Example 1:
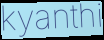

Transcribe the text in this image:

kyanthi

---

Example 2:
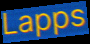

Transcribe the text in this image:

Lapps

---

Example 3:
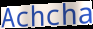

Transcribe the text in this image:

Achcha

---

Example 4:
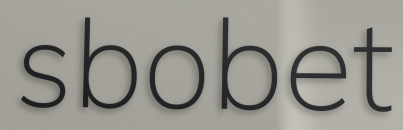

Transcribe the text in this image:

sbobet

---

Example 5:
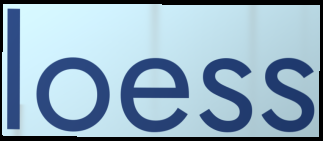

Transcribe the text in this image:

loess